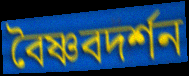
বৈষ্ণবদর্শন